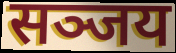
सञ्जय